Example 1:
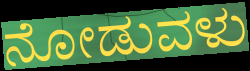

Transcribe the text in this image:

ನೋಡುವಳು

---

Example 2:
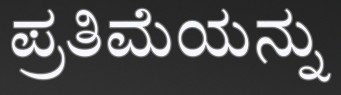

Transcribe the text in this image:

ಪ್ರತಿಮೆಯನ್ನು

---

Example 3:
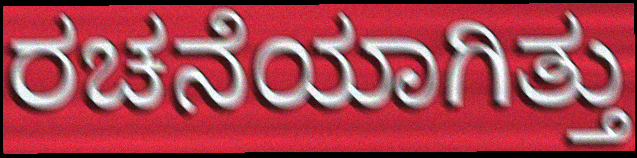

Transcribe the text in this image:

ರಚನೆಯಾಗಿತ್ತು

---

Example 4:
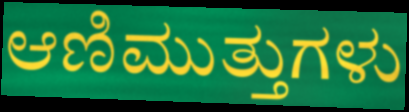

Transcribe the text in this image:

ಆಣಿಮುತ್ತುಗಳು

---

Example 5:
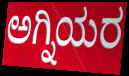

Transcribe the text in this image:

ಅಗ್ನಿಯರ